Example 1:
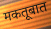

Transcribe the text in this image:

मकतूबात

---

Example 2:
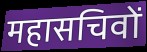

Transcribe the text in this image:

महासचिवों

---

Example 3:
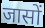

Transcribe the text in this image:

जासों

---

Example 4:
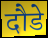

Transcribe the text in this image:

दौडे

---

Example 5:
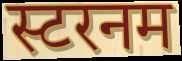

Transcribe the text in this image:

स्टरनम